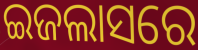
ଇଜଲାସରେ